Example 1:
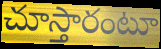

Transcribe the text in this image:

చూస్తారంటూ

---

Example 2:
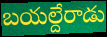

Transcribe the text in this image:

బయల్దేరాడు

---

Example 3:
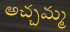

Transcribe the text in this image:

అచ్చమ్మ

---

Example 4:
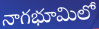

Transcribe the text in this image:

నాగభూమిలో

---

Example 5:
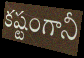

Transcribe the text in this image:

కష్టంగానీ